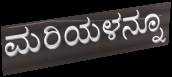
ಮರಿಯಳನ್ನೂ